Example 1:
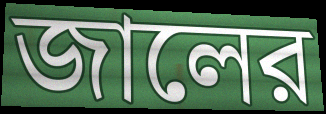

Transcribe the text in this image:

জালের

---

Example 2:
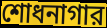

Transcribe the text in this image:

শোধনাগার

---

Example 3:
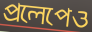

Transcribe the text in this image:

প্রলেপেও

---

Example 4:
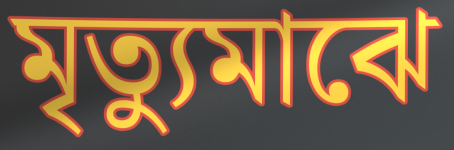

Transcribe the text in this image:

মৃত্যুমাঝে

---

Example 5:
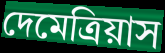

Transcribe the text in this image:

দেমেত্রিয়াস